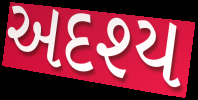
અદશ્ય